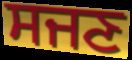
ਸਜਣ